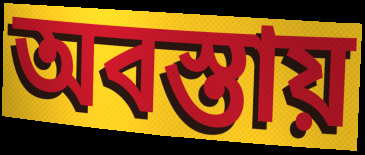
অবস্তায়